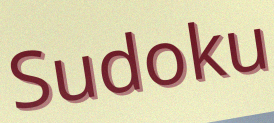
Sudoku